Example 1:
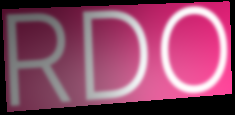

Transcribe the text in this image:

RDO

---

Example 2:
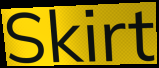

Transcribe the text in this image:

Skirt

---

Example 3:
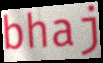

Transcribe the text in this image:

bhaj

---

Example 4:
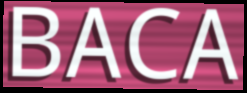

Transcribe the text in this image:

BACA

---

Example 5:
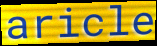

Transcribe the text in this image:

aricle